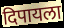
दिपायला